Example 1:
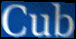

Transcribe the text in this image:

Cub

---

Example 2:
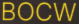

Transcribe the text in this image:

BOCW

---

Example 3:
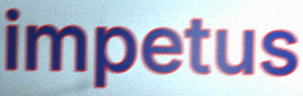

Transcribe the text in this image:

impetus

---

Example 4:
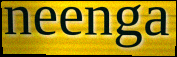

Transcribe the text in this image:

neenga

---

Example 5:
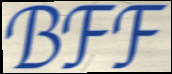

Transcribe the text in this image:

BFF